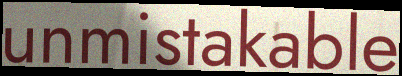
unmistakable